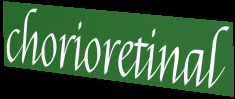
chorioretinal